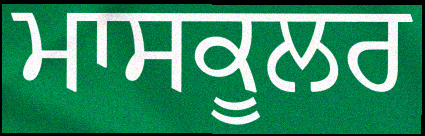
ਮਾਸਕੂਲਰ